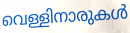
വെള്ളിനാരുകൾ